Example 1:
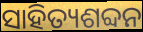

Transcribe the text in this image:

ସାହିତ୍ୟଶବ୍ଦନ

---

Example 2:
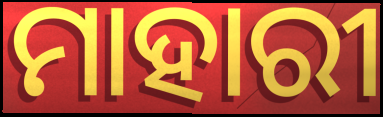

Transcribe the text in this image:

ମାହାରୀ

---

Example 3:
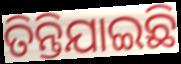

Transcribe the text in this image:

ତିନ୍ତିଯାଇଛି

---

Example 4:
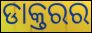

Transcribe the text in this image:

ଡାକ୍ତରର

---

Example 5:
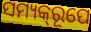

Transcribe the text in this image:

ସମ୍ୟକ୍‌ରୂପେ